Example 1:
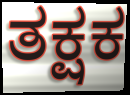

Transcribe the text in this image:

ತಕ್ಷಕ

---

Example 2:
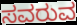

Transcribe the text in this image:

ಸವರುವ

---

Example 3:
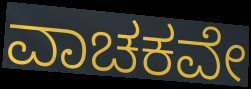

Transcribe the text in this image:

ವಾಚಕವೇ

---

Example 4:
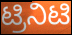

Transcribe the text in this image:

ಟ್ರಿನಿಟಿ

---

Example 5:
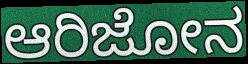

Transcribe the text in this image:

ಆರಿಜೋನ